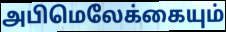
அபிமெலேக்கையும்